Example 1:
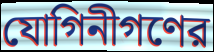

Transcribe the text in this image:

যোগিনীগণের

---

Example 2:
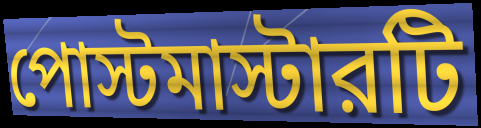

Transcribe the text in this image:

পোস্টমাস্টারটি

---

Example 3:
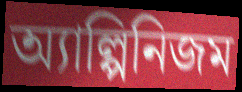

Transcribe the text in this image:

অ্যাল্পিনিজম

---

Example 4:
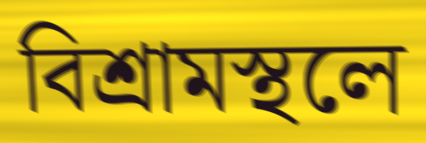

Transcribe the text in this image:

বিশ্রামস্থলে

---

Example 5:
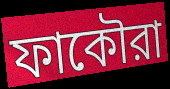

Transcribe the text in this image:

ফাকৌরা